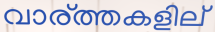
വാര്ത്തകളില്